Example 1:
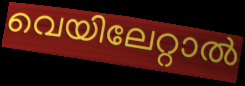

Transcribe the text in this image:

വെയിലേറ്റാൽ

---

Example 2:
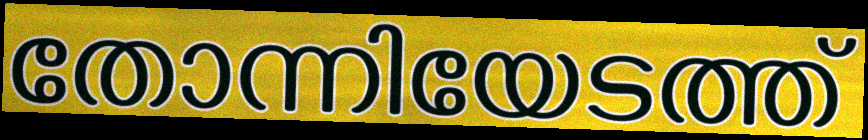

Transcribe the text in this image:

തോന്നിയേടത്ത്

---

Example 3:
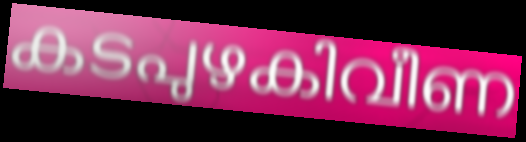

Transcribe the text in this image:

കടപുഴകിവീണ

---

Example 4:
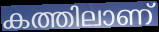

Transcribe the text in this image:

കത്തിലാണ്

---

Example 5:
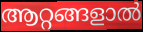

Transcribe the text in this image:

ആറ്റങ്ങളാൽ